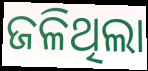
ଜଳିଥିଲା